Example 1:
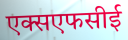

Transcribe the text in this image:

एक्सएफसीई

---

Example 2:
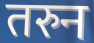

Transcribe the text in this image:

तरुन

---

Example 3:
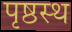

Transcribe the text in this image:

पृष्ठस्थ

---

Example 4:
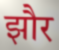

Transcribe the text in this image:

झौर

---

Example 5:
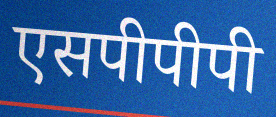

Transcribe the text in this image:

एसपीपीपी